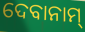
ଦେବାନାମ୍